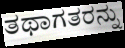
ತಥಾಗತರನ್ನು